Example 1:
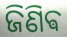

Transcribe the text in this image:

ଜିଣିଵ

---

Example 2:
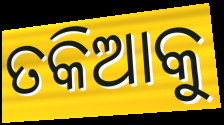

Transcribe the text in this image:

ତକିଆକୁ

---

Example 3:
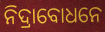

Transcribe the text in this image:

ନିଦ୍ରାବୋଧନେ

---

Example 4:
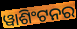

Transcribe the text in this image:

ୱାଶିଂଟନର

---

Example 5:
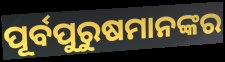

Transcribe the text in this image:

ପୂର୍ବପୁରୁଷମାନଙ୍କର